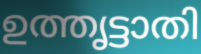
ഉത്തൃട്ടാതി